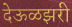
देऊळझरी